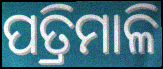
ପତ୍ରିମାଳି